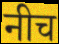
नीच